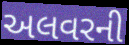
અલવરની